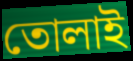
তোলাই